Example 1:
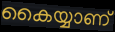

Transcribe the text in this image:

കൈയ്യാണ്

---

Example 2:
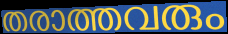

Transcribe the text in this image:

തരാത്തവരും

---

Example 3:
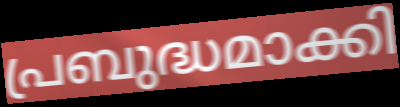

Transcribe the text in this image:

പ്രബുദ്ധമാക്കി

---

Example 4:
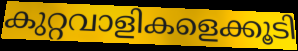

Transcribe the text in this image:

കുറ്റവാളികളെക്കൂടി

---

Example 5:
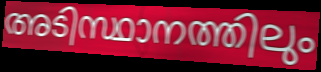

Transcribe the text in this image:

അടിസ്ഥാനത്തിലും